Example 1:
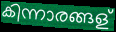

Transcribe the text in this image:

കിന്നാരങ്ങള്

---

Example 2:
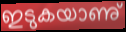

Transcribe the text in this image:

ഇടുകയാണു്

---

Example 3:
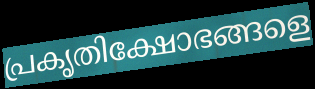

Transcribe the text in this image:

പ്രകൃതിക്ഷോഭങ്ങളെ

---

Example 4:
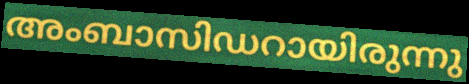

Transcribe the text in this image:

അംബാസിഡറായിരുന്നു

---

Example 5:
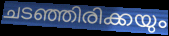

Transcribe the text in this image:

ചടഞ്ഞിരിക്കയും